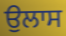
ਉਲਾਸ